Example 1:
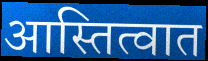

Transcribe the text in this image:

आस्तित्वात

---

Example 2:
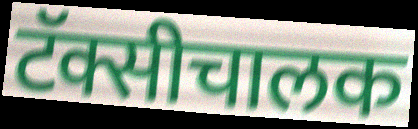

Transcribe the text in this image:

टॅक्सीचालक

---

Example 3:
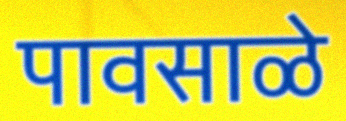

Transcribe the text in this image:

पावसाळे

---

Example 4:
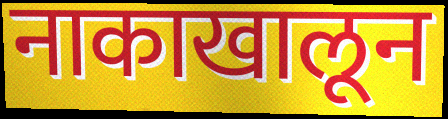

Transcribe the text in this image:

नाकाखालून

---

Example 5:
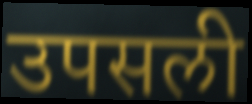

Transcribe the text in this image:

उपसली